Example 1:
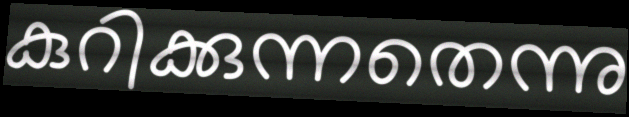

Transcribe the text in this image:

കുറിക്കുന്നതെന്നു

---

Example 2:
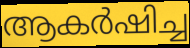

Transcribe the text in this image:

ആകർഷിച്ച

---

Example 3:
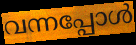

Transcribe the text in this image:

വന്നപ്പോൾ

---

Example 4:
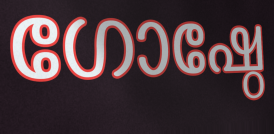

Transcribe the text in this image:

ഗോഷ്ഠേ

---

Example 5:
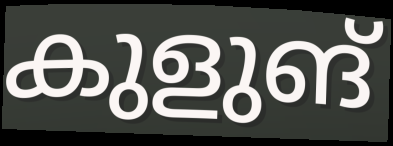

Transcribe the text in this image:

കുളുങ്